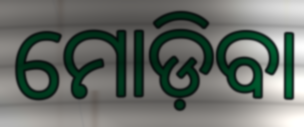
ମୋଡ଼ିବା